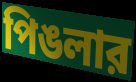
পিঙলার